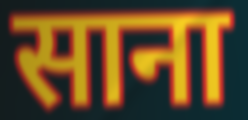
साना